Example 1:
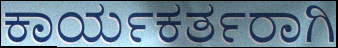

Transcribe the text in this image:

ಕಾರ್ಯಕರ್ತರಾಗಿ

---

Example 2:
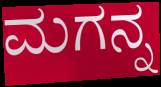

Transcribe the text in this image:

ಮಗನ್ನ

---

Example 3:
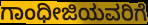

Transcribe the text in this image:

ಗಾಂಧೀಜಿಯವರಿಗೆ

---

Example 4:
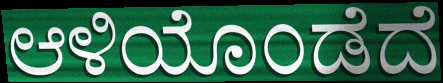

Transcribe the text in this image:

ಆಳಿಯೊಂಡೆದೆ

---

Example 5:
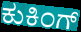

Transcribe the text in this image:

ಕುಕಿಂಗ್